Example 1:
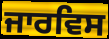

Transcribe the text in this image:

ਜਾਰਵਿਸ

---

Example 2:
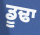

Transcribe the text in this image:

ਡੂਢਾ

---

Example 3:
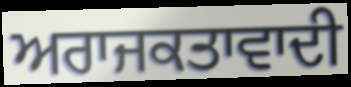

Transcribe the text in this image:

ਅਰਾਜਕਤਾਵਾਦੀ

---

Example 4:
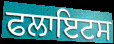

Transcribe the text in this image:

ਫਲਾਇਟਸ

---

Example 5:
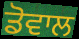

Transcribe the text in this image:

ਡੋਵਾਲ